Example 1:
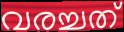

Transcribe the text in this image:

വരച്ചത്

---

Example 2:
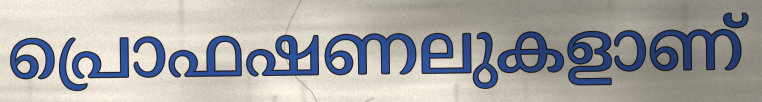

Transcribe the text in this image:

പ്രൊഫഷണലുകളാണ്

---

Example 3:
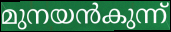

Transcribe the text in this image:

മുനയൻകുന്ന്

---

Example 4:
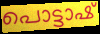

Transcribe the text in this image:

പൊട്ടാഷ്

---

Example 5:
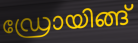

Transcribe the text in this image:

ഡ്രോയിങ്ങ്